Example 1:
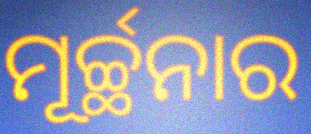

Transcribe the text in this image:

ମୂର୍ଚ୍ଛନାର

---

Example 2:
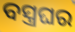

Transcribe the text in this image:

ବସ୍ତ୍ରଘର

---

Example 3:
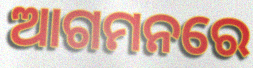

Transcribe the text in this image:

ଆଗମନରେ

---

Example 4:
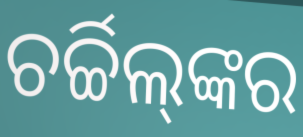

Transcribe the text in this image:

ଚର୍ଚ୍ଚିଲ୍‌ଙ୍କର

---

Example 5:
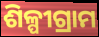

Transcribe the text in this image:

ଶିଳ୍ପୀଗ୍ରାମ